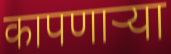
कापणाऱ्या